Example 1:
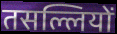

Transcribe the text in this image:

तसल्लियों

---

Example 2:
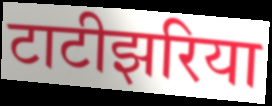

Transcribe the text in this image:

टाटीझरिया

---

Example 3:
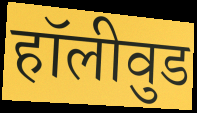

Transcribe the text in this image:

हॉलीवुड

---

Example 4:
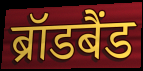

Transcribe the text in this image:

ब्रॉडबैंड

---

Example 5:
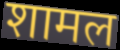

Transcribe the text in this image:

शामल